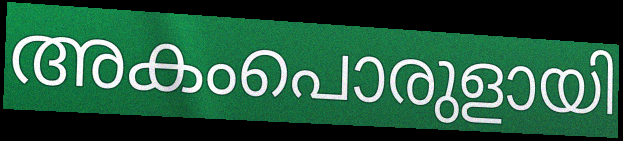
അകംപൊരുളായി